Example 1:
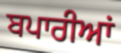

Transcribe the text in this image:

ਬਪਾਰੀਆਂ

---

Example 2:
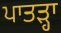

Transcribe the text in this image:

ਪਾਤੜ੍ਹਾ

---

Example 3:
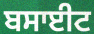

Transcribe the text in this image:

ਬਸਾਈਟ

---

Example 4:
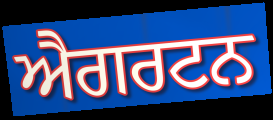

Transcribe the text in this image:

ਐਗਰਟਨ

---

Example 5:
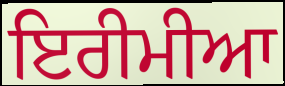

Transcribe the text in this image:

ਇਰੀਮੀਆ